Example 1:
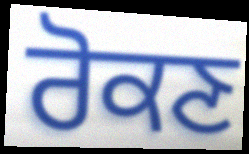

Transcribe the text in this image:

ਰੋਕਣ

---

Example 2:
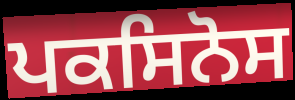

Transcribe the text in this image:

ਪਕਸਿਨੋਸ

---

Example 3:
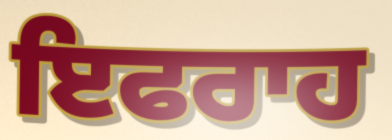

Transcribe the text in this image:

ਇਫਰਾਹ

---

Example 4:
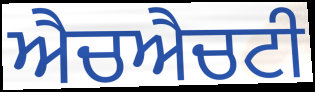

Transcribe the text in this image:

ਐਚਐਚਟੀ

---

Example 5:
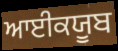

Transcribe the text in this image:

ਆਈਕਯੂਬ